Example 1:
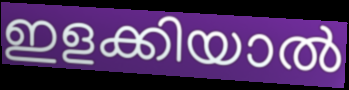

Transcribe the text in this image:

ഇളക്കിയാൽ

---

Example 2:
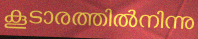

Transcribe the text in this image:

കൂടാരത്തിൽനിന്നു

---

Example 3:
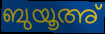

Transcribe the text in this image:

ബുയൂഅ്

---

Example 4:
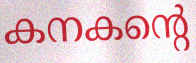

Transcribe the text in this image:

കനകന്റെ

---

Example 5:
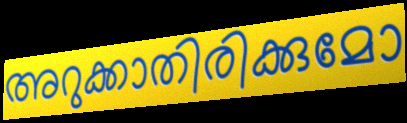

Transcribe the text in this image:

അറുക്കാതിരിക്കുമോ